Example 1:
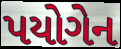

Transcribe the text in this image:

પયોગેન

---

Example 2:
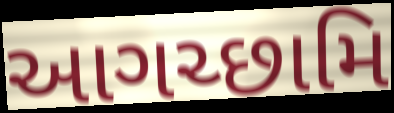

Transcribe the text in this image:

આગચ્છામિ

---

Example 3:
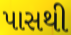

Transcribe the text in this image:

પાસથી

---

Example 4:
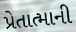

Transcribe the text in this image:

પ્રેતાત્માની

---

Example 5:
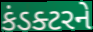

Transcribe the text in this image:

કંડક્ટરને